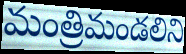
మంత్రిమండలిని